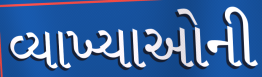
વ્યાખ્યાઓની